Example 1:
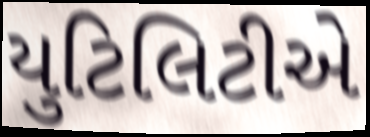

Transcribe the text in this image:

યુટિલિટીએ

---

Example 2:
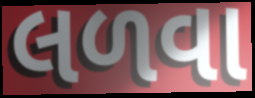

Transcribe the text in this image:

લળવા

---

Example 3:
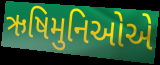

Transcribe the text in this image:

ઋષિમુનિઓએ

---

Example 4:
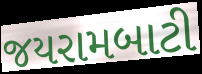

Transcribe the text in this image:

જયરામબાટી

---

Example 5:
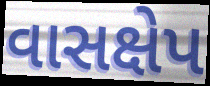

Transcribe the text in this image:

વાસક્ષેપ